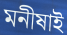
মনীষাই